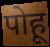
पोहू